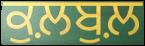
ਕੁਲ਼ਬੁਲ਼